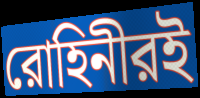
রোহিনীরই